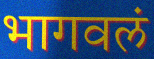
भागवलं